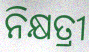
ନିକ୍ଷତ୍ରୀ